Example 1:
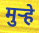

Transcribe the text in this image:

मुऱ्हे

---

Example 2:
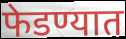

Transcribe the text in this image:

फेडण्यात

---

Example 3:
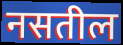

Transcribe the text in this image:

नसतील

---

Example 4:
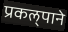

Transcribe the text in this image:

प्रकल्पाने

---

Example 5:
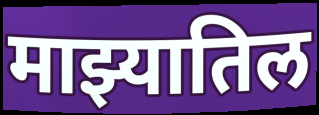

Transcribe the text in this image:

माझ्यातिल